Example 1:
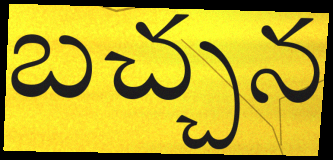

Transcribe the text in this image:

బచ్చన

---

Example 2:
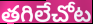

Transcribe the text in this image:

తగిలేచోట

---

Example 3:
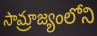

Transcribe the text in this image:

సామ్రాజ్యంలోని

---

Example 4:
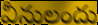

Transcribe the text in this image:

వీనులందు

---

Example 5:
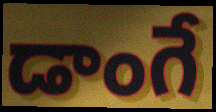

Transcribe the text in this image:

డాంగే